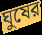
ঘুষের